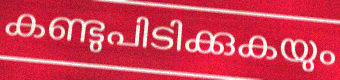
കണ്ടുപിടിക്കുകയും